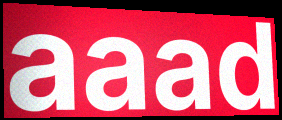
aaad